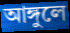
আঙ্গুলে